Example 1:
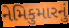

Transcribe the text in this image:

નેમિકુમારનું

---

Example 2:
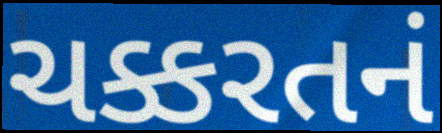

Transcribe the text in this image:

ચક્કરતનં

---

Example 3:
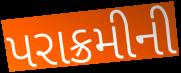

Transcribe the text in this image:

પરાક્રમીની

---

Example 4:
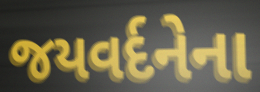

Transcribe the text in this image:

જયવર્દનેના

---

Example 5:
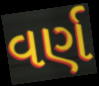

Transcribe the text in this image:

વર્ણ